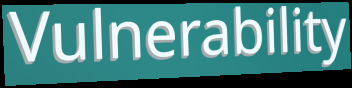
Vulnerability